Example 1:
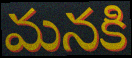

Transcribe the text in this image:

మనకి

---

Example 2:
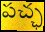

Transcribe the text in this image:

పచ్ఛ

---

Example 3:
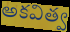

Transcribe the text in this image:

అకవిత్వ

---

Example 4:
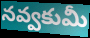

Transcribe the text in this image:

నవ్వకుమీ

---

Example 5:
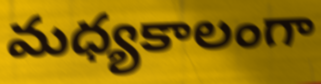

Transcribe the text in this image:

మధ్యకాలంగా